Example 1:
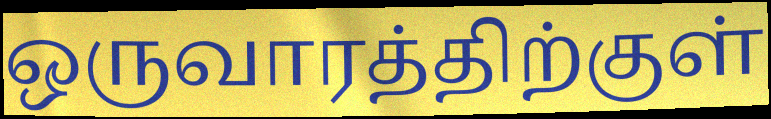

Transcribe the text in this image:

ஒருவாரத்திற்குள்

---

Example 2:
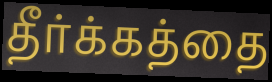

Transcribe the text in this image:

தீர்க்கத்தை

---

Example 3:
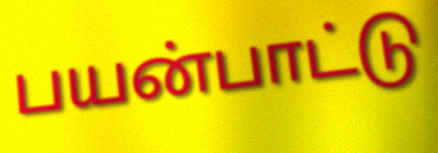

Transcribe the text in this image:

பயன்பாட்டு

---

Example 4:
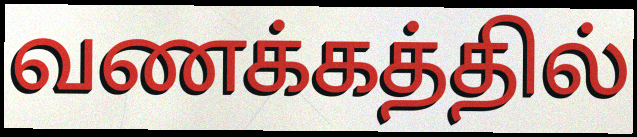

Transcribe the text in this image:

வணக்கத்தில்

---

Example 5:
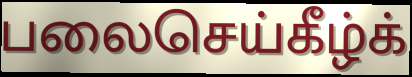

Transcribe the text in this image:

பலைசெய்கீழ்க்